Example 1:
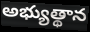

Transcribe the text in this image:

అభ్యుత్థాన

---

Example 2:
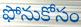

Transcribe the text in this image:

ఫోనుకోసం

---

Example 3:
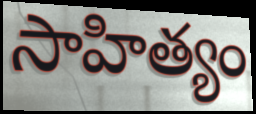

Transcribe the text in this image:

సాహిత్యం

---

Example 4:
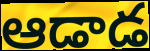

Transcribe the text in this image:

ఆడాడ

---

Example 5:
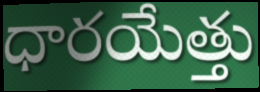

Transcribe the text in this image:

ధారయేత్తు